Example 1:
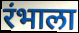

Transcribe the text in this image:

रंभाला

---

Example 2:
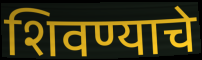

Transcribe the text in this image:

शिवण्याचे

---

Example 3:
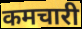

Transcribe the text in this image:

कमचारी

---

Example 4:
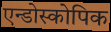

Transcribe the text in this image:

एन्डोस्कोपिक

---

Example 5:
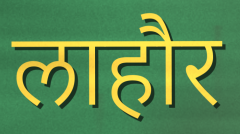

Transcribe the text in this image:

लाहौर